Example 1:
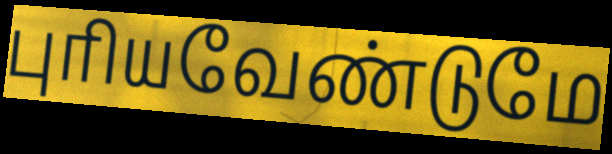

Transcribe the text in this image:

புரியவேண்டுமே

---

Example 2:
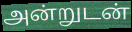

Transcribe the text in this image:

அன்றுடன்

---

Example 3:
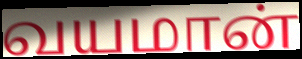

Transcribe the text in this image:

வயமான்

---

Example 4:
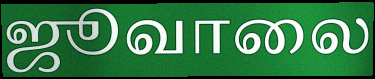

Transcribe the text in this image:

ஜூவாலை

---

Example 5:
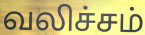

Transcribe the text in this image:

வலிச்சம்